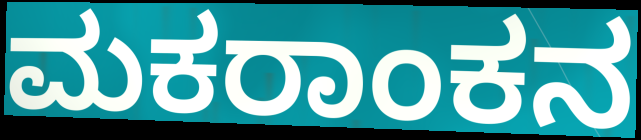
ಮಕರಾಂಕನ